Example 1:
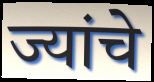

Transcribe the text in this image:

ज्यांचे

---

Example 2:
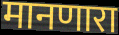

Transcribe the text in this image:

मानणारा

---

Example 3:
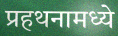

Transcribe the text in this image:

प्रहथनामध्ये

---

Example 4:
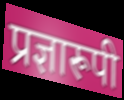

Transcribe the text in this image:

प्रज्ञारूपी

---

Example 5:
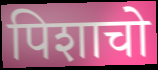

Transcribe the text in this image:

पिशाचो